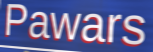
Pawars